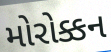
મોરોક્કન